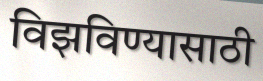
विझविण्यासाठी